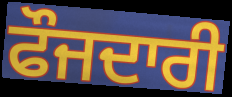
ਫੌਜਦਾਰੀ